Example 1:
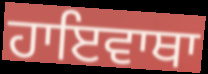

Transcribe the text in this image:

ਹਾਇਵਾਥਾ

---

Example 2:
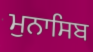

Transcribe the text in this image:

ਮੁਨਾਸਿਬ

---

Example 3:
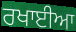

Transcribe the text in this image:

ਰਖਾਈਆ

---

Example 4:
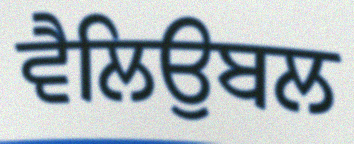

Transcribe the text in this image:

ਵੈਲਿਉਬਲ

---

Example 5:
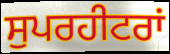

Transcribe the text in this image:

ਸੁਪਰਹੀਟਰਾਂ